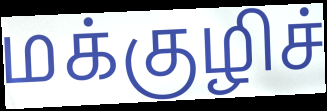
மக்குழிச்